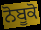
ਨੋਬੂਕੋ